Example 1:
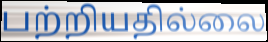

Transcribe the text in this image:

பற்றியதில்லை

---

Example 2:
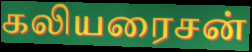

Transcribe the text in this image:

கலியரைசன்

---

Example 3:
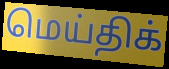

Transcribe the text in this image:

மெய்திக்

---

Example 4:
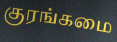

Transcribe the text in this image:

குரங்கமை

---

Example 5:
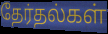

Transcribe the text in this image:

தேர்தல்கள்